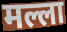
मल्ला